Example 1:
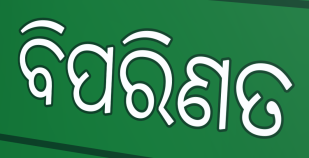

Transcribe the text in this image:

ବିପରିଣତ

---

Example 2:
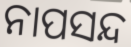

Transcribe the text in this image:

ନାପସନ୍ଦ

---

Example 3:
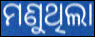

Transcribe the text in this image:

ମଣୁଥିଲା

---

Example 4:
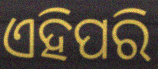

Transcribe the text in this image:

ଏହିପରି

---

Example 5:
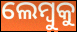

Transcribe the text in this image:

ଲେମ୍ବୁକୁ